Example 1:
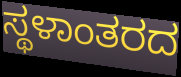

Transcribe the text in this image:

ಸ್ಥಳಾಂತರದ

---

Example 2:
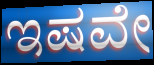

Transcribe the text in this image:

ಇಷವೇ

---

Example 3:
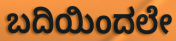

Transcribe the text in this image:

ಬದಿಯಿಂದಲೇ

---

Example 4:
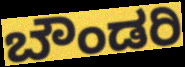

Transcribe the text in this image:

ಬೌಂಡರಿ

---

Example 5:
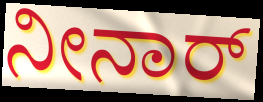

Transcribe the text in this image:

ನೀನಾರ್